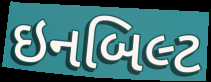
ઇનબિલ્ટ